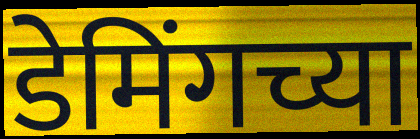
डेमिंगच्या